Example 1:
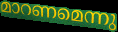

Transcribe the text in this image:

മാറണമെന്നു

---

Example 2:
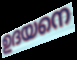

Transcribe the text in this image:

ഉദയനെ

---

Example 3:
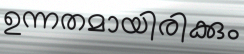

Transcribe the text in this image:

ഉന്നതമായിരിക്കും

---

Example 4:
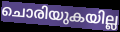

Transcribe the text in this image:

ചൊരിയുകയില്ല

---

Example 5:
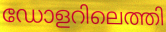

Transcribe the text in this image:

ഡോളറിലെത്തി